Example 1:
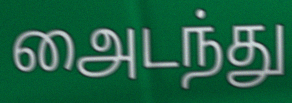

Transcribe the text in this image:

அைடந்து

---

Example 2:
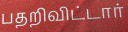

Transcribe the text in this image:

பதறிவிட்டார்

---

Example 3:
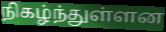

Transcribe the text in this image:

நிகழ்ந்துள்ளன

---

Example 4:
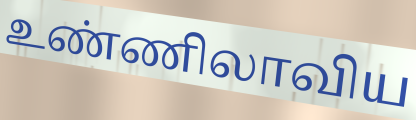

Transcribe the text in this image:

உண்ணிலாவிய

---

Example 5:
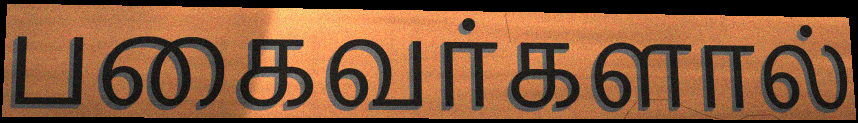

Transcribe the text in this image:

பகைவர்களால்